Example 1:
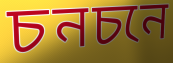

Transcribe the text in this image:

চনচনে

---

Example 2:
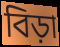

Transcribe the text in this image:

বিড়া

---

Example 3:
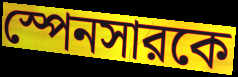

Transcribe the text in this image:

স্পেনসারকে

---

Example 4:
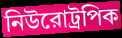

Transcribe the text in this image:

নিউরোট্রপিক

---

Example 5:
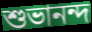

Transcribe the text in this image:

শুভানন্দ